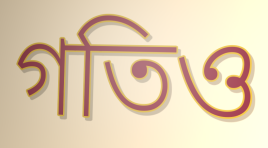
গতিও